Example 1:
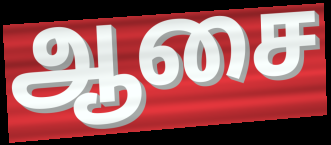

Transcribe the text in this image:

ஆசை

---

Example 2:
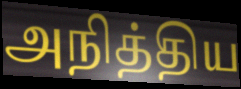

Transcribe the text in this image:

அநித்திய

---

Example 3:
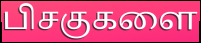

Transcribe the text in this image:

பிசகுகளை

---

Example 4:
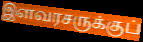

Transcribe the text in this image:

இளவரசருக்குப்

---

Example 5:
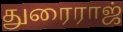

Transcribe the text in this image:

துரைராஜ்